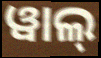
ୱାଲ୍